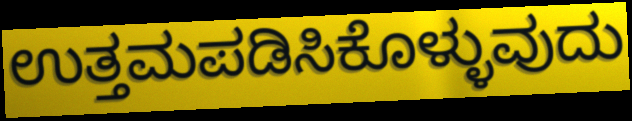
ಉತ್ತಮಪಡಿಸಿಕೊಳ್ಳುವುದು